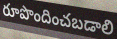
రూపొందించబడాలి